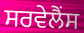
ਸਰਵੇਲੈਂਸ